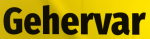
Gehervar